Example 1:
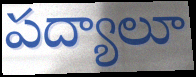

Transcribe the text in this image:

పద్యాలూ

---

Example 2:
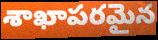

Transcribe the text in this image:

శాఖాపరమైన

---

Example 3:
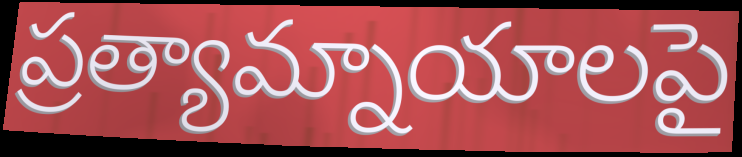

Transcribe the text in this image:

ప్రత్యామ్నాయాలపై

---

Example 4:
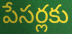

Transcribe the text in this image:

పేసర్లకు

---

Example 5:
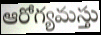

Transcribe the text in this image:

ఆరోగ్యమస్తు